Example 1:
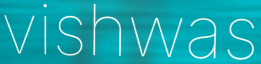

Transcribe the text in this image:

vishwas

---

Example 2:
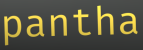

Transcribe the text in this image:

pantha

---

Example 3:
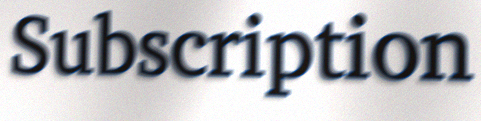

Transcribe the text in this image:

Subscription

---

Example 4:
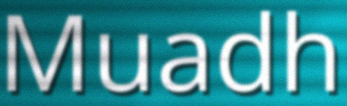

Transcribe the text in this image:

Muadh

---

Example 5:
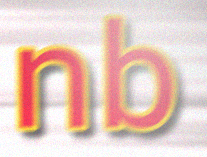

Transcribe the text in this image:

nb